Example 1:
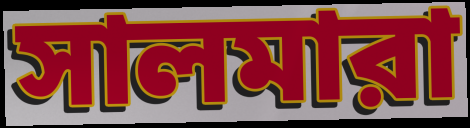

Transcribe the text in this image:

সালমারা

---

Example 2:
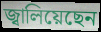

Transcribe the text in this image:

জ্বালিয়েছেন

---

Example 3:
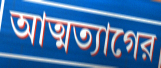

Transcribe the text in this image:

আত্মত্যাগের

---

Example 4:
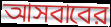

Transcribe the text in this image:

আসবাবের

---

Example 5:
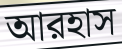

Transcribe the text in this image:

আরহাস